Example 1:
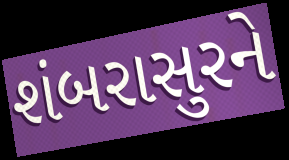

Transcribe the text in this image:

શંબરાસુરને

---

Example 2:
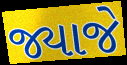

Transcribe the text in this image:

જ્યાજે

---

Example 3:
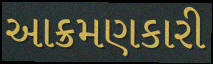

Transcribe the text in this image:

આક્રમણકારી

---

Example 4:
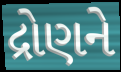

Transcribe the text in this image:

દ્રોણને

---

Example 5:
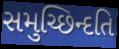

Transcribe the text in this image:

સમુચ્છિન્દતિ